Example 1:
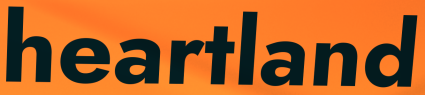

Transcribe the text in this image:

heartland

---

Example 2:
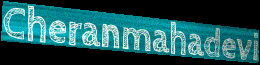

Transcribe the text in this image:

Cheranmahadevi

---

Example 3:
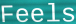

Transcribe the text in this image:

Feels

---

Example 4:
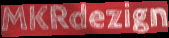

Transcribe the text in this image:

MKRdezign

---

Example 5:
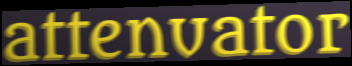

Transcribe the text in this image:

attenuator